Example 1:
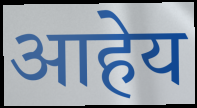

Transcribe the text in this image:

आहेय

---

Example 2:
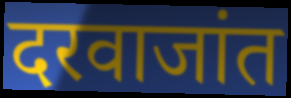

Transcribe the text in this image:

दरवाजांत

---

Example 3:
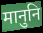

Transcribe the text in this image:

मानुनि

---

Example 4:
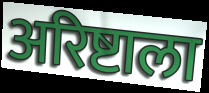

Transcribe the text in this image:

अरिष्टाला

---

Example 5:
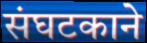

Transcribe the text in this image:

संघटकाने